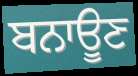
ਬਨਾਊਣ